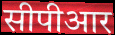
सीपीआर